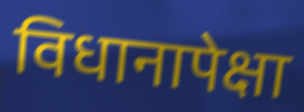
विधानापेक्षा